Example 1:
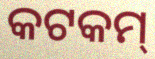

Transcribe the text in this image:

କଟକମ୍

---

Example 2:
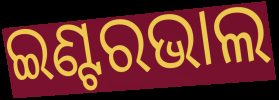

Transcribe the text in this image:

ଇଣ୍ଟରଭାଲ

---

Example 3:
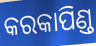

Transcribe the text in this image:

କରକାପିଣ୍ଡ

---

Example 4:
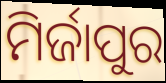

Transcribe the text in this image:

ମିର୍ଜାପୁର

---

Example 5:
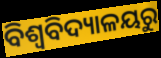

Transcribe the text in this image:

ବିଶ୍ୱବିଦ୍ୟାଳୟରୁ